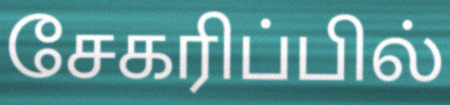
சேகரிப்பில்